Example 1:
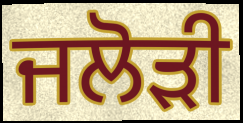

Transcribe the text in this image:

ਜਲੋੜੀ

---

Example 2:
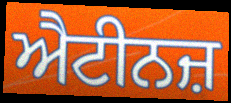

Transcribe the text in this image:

ਐਟੀਨਜ਼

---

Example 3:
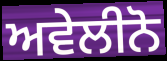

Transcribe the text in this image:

ਅਵੇਲੀਨੋ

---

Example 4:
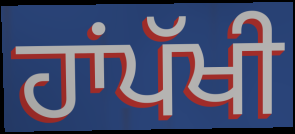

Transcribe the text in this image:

ਹਾਂਪੱਖੀ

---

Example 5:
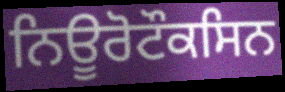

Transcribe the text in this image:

ਨਿਊਰੋਟੌਕਸਿਨ